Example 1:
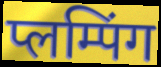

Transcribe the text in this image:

प्लम्पिंग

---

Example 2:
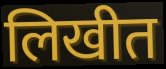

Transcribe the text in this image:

लिखीत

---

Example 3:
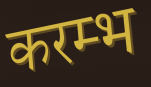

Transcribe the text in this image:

करम्भ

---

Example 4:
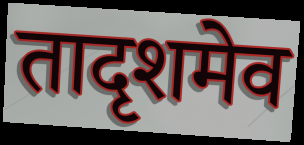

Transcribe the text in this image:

तादृशमेव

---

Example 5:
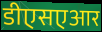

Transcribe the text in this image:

डीएसएआर